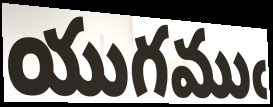
యుగముఁ